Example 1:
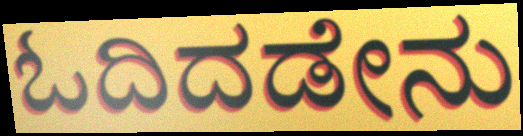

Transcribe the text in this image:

ಓದಿದಡೇನು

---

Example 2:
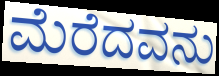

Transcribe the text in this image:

ಮೆರೆದವನು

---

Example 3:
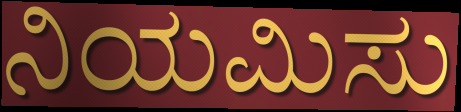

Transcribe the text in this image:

ನಿಯಮಿಸು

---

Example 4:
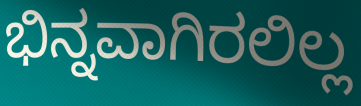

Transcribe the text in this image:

ಭಿನ್ನವಾಗಿರಲಿಲ್ಲ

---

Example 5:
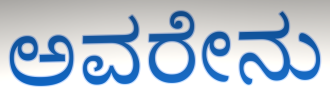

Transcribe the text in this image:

ಅವರೇನು